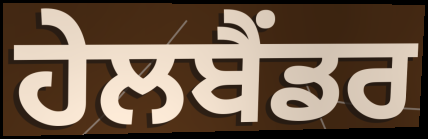
ਹੇਲਬੈਂਡਰ